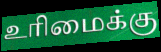
உரிமைக்கு